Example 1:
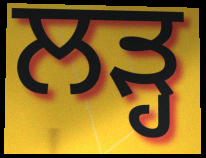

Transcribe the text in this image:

ਲੜ੍ਹ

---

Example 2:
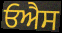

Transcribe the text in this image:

ਓਐਸ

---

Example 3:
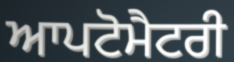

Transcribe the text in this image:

ਆਪਟੋਮੈਟਰੀ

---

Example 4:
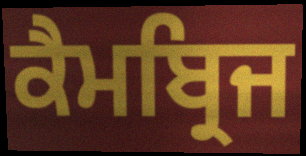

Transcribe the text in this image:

ਕੈਮਬ੍ਰਿਜ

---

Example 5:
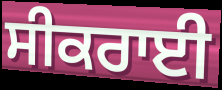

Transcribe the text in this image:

ਸੀਕਰਾਈ